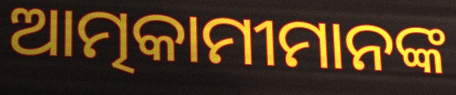
ଆତ୍ମକାମୀମାନଙ୍କ